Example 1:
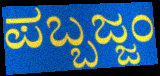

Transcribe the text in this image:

ಪಬ್ಬಜ್ಜಂ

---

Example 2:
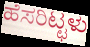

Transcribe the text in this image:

ಹೆಸರಿಟ್ಟಳು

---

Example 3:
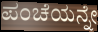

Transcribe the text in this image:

ಪಂಚೆಯನ್ನೇ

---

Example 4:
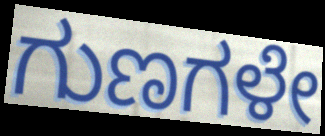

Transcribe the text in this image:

ಗುಣಗಳೇ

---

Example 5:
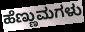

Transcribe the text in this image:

ಹೆಣ್ಣುಮಗಳು